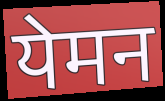
येमन